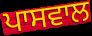
ਪਾਸਵਾਲ